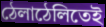
ঠেলাঠেলিতেই